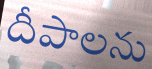
దీపాలను